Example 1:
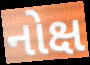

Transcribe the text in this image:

નોક્ષ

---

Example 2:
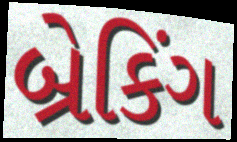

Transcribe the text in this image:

બ્રેકિંગ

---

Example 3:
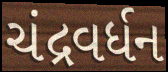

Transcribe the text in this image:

ચંદ્રવર્ધન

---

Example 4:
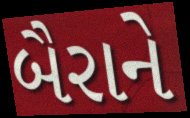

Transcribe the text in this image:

બૈરાને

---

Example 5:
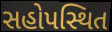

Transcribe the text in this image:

સહોપસ્થિત